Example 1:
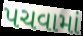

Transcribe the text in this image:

પચવામાં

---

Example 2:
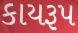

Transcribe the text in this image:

કાયરૂપ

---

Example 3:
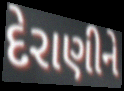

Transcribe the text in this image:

દેરાણીને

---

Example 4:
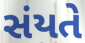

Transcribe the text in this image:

સંયતે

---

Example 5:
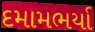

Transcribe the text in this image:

દમામભર્યા